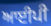
ਆਈਪੀ